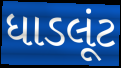
ધાડલૂંટ